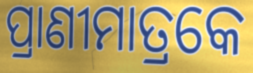
ପ୍ରାଣୀମାତ୍ରକେ